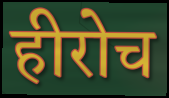
हीरोच